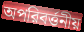
অপরিবর্ত্তনীয়